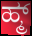
ಹ್ಮ್